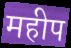
महीप